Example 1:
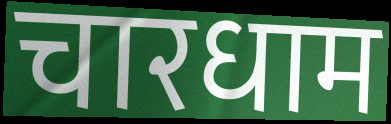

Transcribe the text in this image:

चारधाम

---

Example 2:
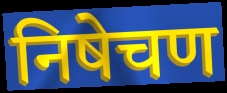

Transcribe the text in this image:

निषेचण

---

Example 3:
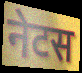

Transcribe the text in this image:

नेटस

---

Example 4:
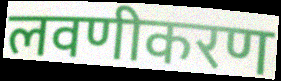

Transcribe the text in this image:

लवणीकरण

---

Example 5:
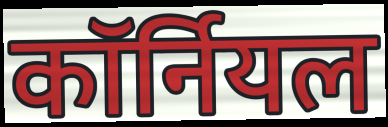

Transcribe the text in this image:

कॉर्नियल